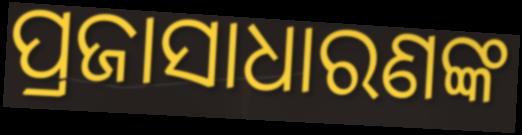
ପ୍ରଜାସାଧାରଣଙ୍କ